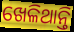
ଖେଳିଥାନ୍ତି